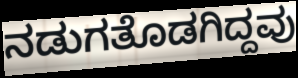
ನಡುಗತೊಡಗಿದ್ದವು